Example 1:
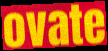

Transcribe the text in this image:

ovate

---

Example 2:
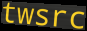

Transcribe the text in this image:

twsrc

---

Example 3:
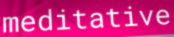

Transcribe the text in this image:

meditative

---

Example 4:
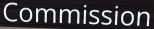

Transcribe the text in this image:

Commission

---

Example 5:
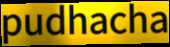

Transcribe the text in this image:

pudhacha